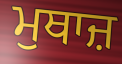
ਮੁਥਾਜ਼